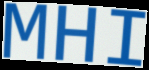
MHI